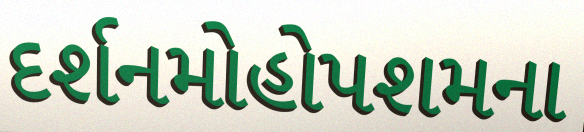
દર્શનમોહોપશમના